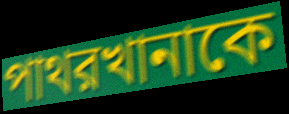
পাথরখানাকে